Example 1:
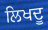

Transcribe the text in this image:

ਲਿਖਦੂ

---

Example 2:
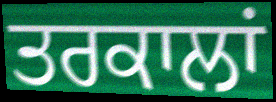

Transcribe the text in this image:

ਤਰਕਾਲਾਂ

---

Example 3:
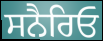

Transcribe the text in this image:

ਸਨੈਰਿਓ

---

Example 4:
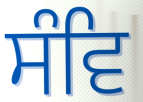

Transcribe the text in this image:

ਸੰਵਿ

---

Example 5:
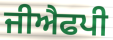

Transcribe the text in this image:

ਜੀਐਫਪੀ